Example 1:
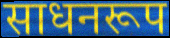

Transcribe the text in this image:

साधनरूप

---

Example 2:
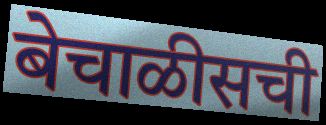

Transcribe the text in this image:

बेचाळीसची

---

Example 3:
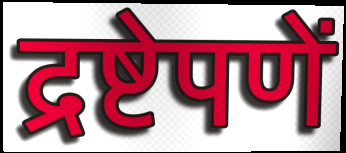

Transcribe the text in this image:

द्रष्टेपणें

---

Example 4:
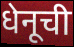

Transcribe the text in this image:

धेनूची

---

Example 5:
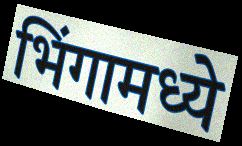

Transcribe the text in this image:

भिंगामध्ये